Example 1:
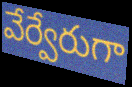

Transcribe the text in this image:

వేర్వేరుగా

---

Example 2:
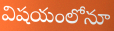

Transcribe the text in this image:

విషయంలోనూ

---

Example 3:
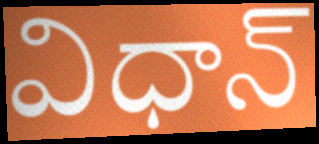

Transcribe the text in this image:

విధాన్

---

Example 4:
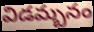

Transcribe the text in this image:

విడమ్బనం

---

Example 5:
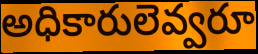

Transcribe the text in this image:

అధికారులెవ్వరూ